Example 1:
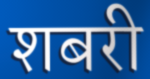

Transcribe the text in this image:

शबरी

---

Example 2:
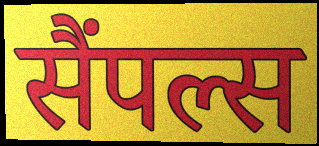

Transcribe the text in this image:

सैंपल्स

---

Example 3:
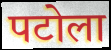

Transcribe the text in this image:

पटोला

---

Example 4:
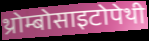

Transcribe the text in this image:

थ्रोम्बोसाइटोपेथी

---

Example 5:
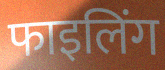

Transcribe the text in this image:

फाइलिंग